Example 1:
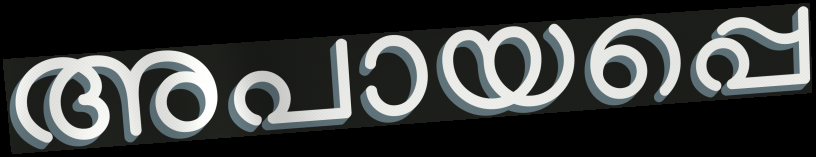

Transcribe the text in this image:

അപായപ്പെ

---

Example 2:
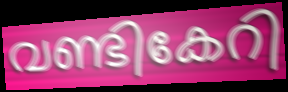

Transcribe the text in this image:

വണ്ടികേറി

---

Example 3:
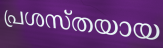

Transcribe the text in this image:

പ്രശസ്തയായ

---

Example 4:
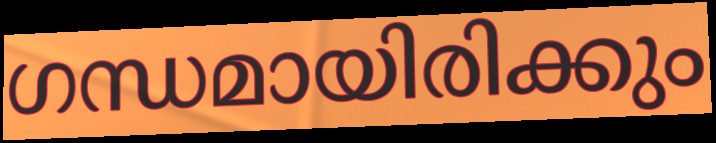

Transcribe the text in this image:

ഗന്ധമായിരിക്കും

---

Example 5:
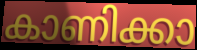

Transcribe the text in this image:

കാണിക്കാ